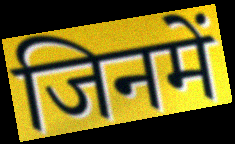
जिनमें